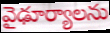
వైఢూర్యాలను